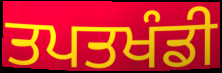
ਤਪਤਖੰਡੀ